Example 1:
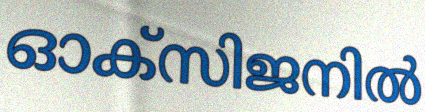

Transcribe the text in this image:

ഓക്സിജനിൽ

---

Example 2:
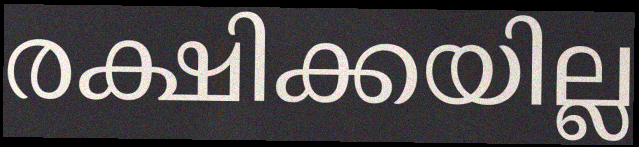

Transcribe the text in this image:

രക്ഷിക്കയില്ല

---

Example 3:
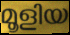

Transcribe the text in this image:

മൂളിയ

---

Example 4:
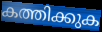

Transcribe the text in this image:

കത്തിക്കുക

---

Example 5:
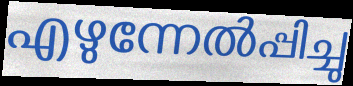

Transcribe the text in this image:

എഴുന്നേൽപ്പിച്ചു